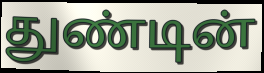
துண்டின்